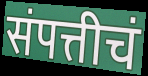
संपत्तीचं